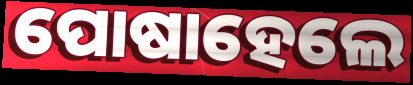
ପୋଷାହେଲେ